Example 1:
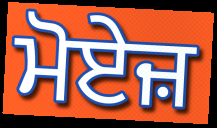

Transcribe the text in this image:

ਮੋਏਜ਼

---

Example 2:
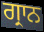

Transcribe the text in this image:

ਗ੍ਰਾਨ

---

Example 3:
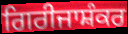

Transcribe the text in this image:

ਗਿਰੀਜਾਸ਼ੰਕਰ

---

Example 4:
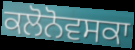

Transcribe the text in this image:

ਕਲੋਨੋਵਸਕਾ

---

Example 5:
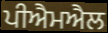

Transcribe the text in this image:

ਪੀਐਮਐਲ